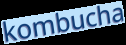
kombucha